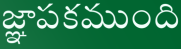
జ్ఞాపకముంది